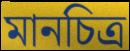
মানচিত্র